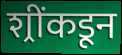
श्रींकडून